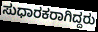
ಸುಧಾರಕರಾಗಿದ್ದರು